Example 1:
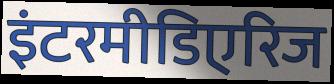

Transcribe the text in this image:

इंटरमीडिएरिज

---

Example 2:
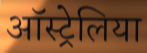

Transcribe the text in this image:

ऑस्ट्रेलिया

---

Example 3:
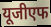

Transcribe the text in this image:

यूजीएफ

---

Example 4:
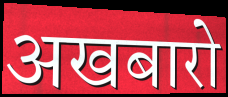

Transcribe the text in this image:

अखबारो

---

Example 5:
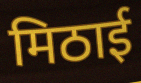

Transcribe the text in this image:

मिठाई